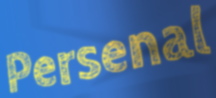
Persenal